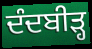
ਦੰਦਬੀੜ੍ਹ